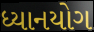
ધ્યાનયોગ